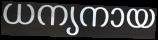
ധന്യനായ